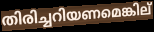
തിരിച്ചറിയണമെങ്കില്